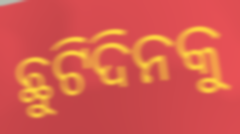
ଛୁଟିଦିନକୁ